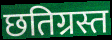
छतिग्रस्त